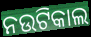
ନଉଟିକାଲ